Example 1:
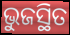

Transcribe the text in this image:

ଭୁଜସ୍ଥିତ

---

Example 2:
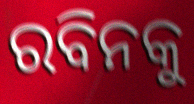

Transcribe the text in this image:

ରବିନକୁ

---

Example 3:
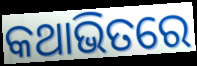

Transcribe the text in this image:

କଥାଭିତରେ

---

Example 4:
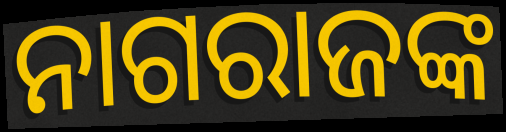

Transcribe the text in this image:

ନାଗରାଜଙ୍କ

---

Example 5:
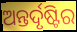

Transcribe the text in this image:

ଅନ୍ତର୍ଦୃଷ୍ଟିର